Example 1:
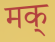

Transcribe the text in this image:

मक्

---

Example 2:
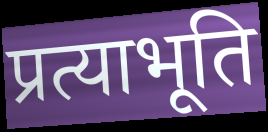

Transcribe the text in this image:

प्रत्याभूति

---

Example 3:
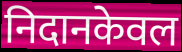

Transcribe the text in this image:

निदानकेवल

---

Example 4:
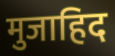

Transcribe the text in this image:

मुजाहिद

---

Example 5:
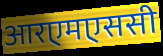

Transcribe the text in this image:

आरएमएससी